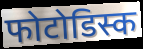
फोटोडिस्क